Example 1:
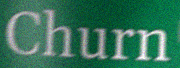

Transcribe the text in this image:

Churn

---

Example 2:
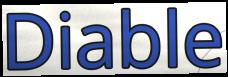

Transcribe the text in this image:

Diable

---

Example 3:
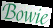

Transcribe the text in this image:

Bowie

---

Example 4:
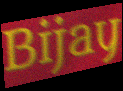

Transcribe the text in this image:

Bijay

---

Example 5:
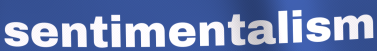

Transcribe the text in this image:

sentimentalism